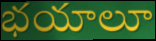
భయాలూ